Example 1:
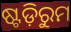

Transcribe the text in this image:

ଷ୍ଟଡ଼ିରୁମ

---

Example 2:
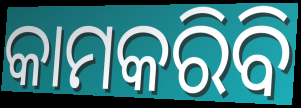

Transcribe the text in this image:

କାମକରିବି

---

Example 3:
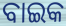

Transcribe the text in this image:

ବାଇକ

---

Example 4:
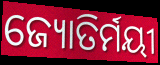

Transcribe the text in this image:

ଜ୍ୟୋତିର୍ମୟୀ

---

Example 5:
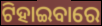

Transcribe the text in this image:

ଟିହାଇବାରେ